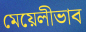
মেয়েলীভাব